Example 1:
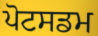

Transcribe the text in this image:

ਪੋਟਸਡਮ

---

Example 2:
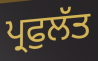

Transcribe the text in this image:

ਪ੍ਰਫੁਲੱਤ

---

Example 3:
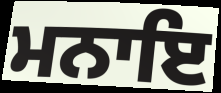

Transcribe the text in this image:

ਮਨਾਇ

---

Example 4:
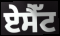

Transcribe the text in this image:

ਏਸੈੱਟ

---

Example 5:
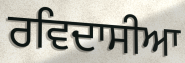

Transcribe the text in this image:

ਰਵਿਦਾਸੀਆ